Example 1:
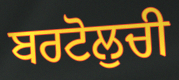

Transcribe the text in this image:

ਬਰਟੋਲੁਚੀ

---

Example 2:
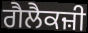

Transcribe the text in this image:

ਗੈਲੈਕਜ਼ੀ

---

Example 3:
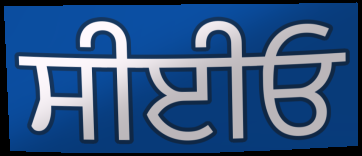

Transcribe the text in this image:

ਸੀਈਓ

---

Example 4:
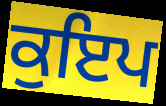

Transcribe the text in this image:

ਕੁਇਪ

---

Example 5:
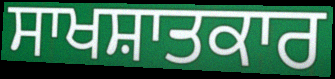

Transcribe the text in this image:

ਸਾਖਸ਼ਾਤਕਾਰ